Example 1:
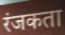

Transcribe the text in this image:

रंजकता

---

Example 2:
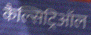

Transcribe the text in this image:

कैल्सिट्रिऑल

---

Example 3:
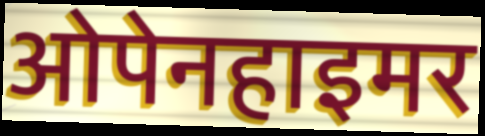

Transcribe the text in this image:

ओपेनहाइमर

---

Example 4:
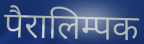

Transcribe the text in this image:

पैरालिम्पक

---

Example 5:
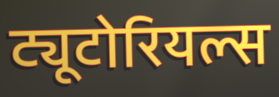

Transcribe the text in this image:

ट्यूटोरियल्स